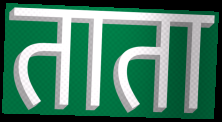
ताता